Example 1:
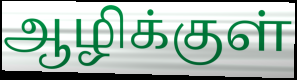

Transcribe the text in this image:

ஆழிக்குள்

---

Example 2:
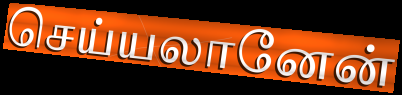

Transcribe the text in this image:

செய்யலானேன்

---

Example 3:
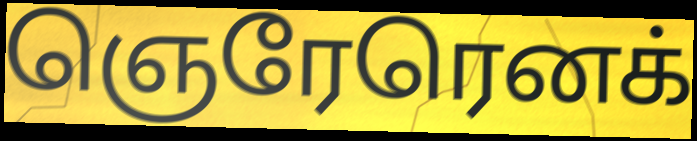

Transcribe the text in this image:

ஞெரேரெனக்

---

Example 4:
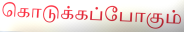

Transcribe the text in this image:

கொடுக்கப்போகும்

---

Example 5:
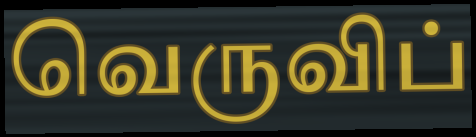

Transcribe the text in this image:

வெருவிப்